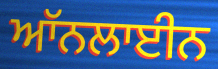
ਆੱਨਲਾਈਨ